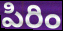
పిరిం